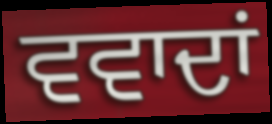
ਵਵਾਦਾਂ